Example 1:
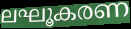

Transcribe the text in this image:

ലഘൂകരണ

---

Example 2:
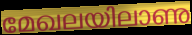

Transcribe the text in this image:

മേഖലയിലാണു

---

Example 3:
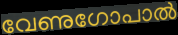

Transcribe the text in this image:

വേണുഗോപാൽ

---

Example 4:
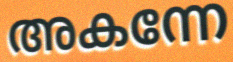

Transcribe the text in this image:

അകന്നേ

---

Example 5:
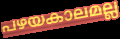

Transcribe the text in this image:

പഴയകാലമല്ല